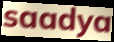
saadya